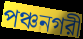
পঞ্চনগরী